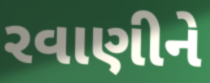
રવાણીને